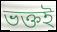
ভক্তই